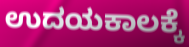
ಉದಯಕಾಲಕ್ಕೆ